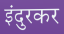
इंदुरकर